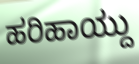
ಹರಿಹಾಯ್ದು